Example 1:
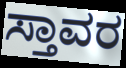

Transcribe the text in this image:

ಸ್ತಾವರ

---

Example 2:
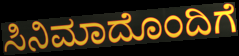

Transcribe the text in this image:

ಸಿನಿಮಾದೊಂದಿಗೆ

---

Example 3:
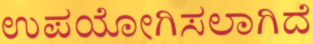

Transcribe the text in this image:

ಉಪಯೋಗಿಸಲಾಗಿದೆ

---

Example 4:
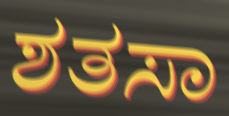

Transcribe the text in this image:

ಶತಸಾ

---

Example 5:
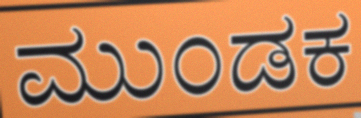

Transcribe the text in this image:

ಮುಂಡಕ